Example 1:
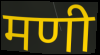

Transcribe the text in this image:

मणी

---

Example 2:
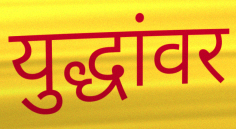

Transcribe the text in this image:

युद्धांवर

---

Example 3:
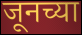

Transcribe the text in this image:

जूनच्या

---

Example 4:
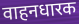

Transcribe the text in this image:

वाहनधारक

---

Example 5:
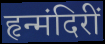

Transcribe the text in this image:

हृन्मंदिरीं